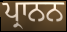
ਪ੍ਰਾਨਨ